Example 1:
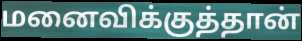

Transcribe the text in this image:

மனைவிக்குத்தான்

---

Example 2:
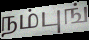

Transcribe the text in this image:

நம்புங்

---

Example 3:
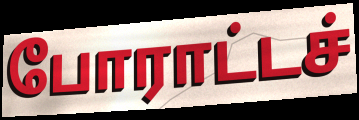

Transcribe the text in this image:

போராட்டச்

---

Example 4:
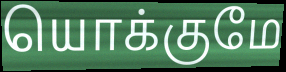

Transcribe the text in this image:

யொக்குமே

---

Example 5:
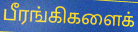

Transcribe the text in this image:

பீரங்கிகளைக்